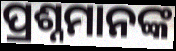
ପ୍ରଶ୍ନମାନଙ୍କ